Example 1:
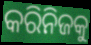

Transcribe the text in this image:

କରିନିଜକୁ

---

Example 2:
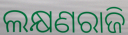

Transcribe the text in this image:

ଲକ୍ଷଣରାଜି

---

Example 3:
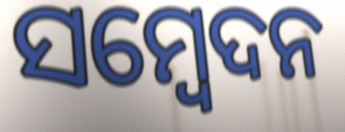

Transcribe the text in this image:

ସମ୍ଵେଦନ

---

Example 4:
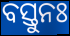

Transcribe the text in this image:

ବସ୍ତୁନଃ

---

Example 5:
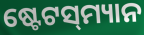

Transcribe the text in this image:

ଷ୍ଟେଟସ୍‌ମ୍ୟାନ